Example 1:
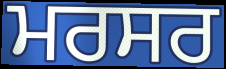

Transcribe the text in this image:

ਮਰਸਰ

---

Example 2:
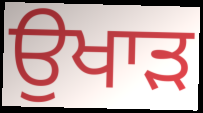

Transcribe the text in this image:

ਉਖਾੜ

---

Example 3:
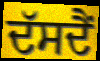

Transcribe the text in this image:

ਦੱਸਦੈਂ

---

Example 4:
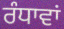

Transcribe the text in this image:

ਰੰਧਾਵਾਂ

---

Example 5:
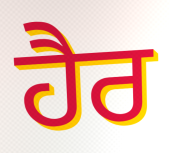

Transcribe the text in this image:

ਹੈਰ